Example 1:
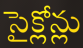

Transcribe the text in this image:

సైక్లోన్లు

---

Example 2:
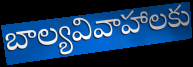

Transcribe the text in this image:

బాల్యవివాహాలకు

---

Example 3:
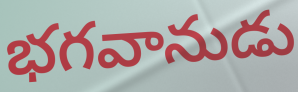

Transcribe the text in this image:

భగవానుడు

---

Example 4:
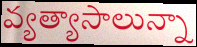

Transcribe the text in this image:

వ్యత్యాసాలున్నా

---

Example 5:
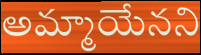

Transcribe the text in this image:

అమ్మాయేనని